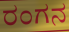
ರಂಗನ